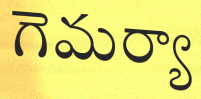
గెమర్యా